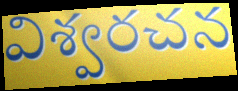
విశ్వరచన